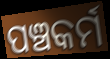
ପଞ୍ଚକର୍ମ